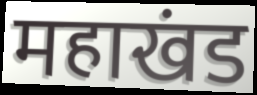
महाखंड